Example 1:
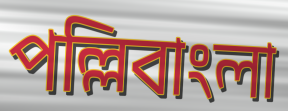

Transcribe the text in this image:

পল্লিবাংলা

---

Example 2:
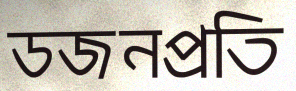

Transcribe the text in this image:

ডজনপ্রতি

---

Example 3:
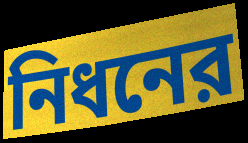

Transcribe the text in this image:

নিধনের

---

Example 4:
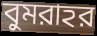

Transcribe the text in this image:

বুমরাহর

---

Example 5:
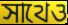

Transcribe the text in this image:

সাথেও